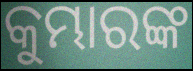
କୁମ୍ଭାରଙ୍କ